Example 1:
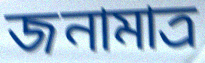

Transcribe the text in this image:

জনামাত্র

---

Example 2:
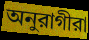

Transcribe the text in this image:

অনুরাগীরা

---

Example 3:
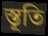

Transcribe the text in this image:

স্তূতি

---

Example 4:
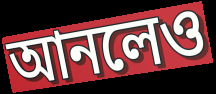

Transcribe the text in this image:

আনলেও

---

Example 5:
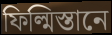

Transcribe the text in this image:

ফিল্মিস্তানে